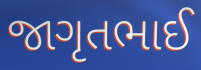
જાગૃતભાઈ